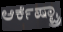
ಆರ್ಕೆಷ್ಟ್ರಾ